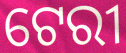
ଟେରୀ